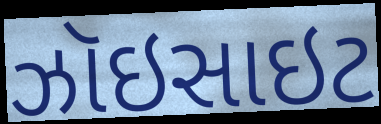
ઝૉઇસાઇટ